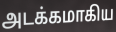
அடக்கமாகிய